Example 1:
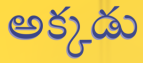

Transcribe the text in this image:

అక్కడు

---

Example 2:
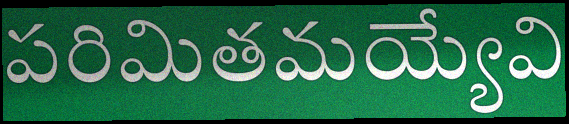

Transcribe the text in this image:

పరిమితమయ్యేవి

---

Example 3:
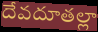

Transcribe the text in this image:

దేవదూతల్లా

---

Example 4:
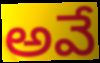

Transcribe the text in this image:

అవే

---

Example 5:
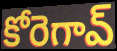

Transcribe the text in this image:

కోరెగావ్